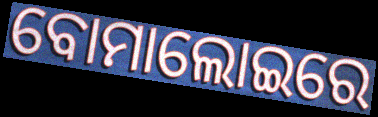
ବୋମାଲୋଇରେ